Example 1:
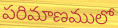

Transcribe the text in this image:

పరిమాణములో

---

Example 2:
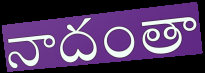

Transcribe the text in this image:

నాదంతా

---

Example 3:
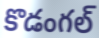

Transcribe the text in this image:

కొడంగల్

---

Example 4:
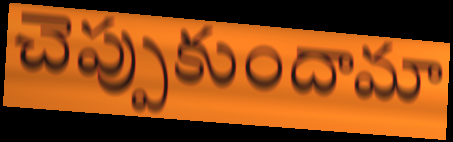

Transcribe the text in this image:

చెప్పుకుందామా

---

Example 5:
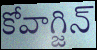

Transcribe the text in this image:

కోవాగ్జిన్